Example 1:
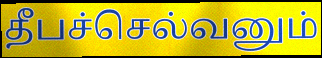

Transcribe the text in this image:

தீபச்செல்வனும்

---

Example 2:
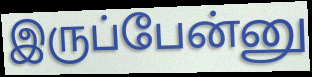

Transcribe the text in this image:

இருப்பேன்னு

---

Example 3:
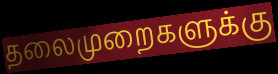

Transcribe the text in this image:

தலைமுறைகளுக்கு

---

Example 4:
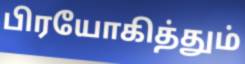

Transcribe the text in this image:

பிரயோகித்தும்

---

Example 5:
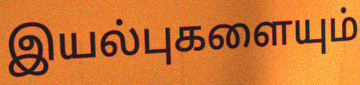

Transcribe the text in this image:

இயல்புகளையும்